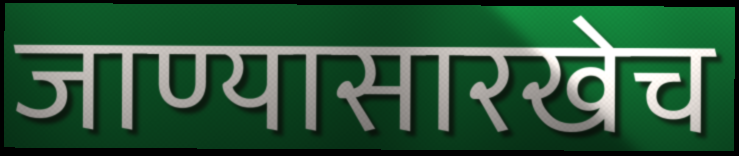
जाण्यासारखेच